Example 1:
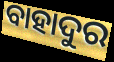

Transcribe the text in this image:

ବାହାଦୁର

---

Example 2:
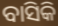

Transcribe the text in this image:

ବାସିକି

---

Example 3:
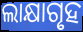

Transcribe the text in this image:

ଲାକ୍ଷାଗୃହ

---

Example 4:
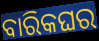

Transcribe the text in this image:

ବାରିକଘର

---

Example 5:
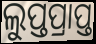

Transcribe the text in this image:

ଲୁପ୍ତପ୍ରାପ୍ତ